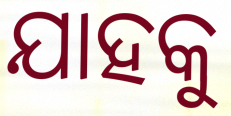
ଯାହକୁ